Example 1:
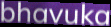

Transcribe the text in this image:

bhavuka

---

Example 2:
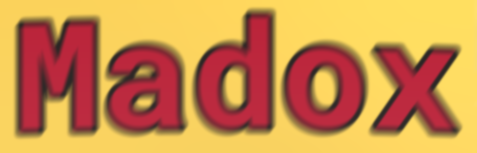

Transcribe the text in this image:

Madox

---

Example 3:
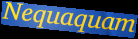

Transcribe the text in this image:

Nequaquam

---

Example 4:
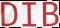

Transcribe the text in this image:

DIB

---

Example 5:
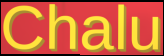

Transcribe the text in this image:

Chalu